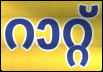
റാറ്റ്